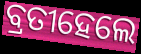
ବ୍ରତୀହେଲେ